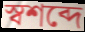
স্বশব্দে